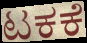
ಟಕಕೆ